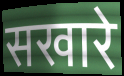
सखारे